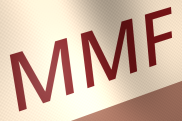
MMF